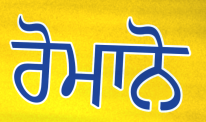
ਰੋਮਾਨੋ